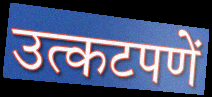
उत्कटपणें